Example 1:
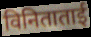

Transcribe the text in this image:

विनिताताई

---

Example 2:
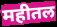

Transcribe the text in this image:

महीतल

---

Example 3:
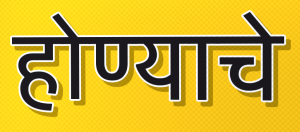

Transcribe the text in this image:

होण्याचे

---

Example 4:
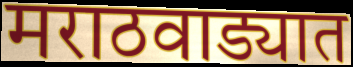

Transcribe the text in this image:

मराठवाड्यात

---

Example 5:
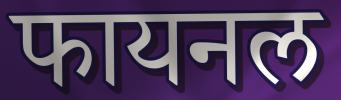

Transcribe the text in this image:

फायनल